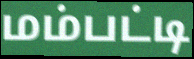
மம்பட்டி